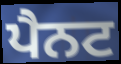
ਪੈਨਟ